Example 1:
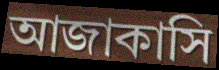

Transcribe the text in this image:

আজাকাসি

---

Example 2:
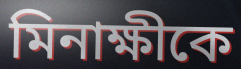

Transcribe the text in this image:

মিনাক্ষীকে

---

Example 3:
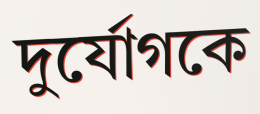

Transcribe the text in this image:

দুর্যোগকে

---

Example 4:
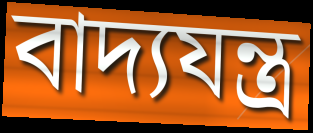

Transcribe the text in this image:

বাদ্যযন্ত্র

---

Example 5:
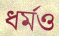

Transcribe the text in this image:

ধর্মও